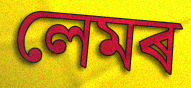
লেমৰ